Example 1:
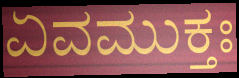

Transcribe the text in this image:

ಏವಮುಕ್ತಃ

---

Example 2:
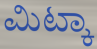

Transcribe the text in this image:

ಮಿಟ್ಕಾ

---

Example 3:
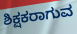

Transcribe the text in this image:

ಶಿಕ್ಷಕರಾಗುವ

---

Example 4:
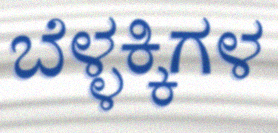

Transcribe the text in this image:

ಬೆಳ್ಳಕ್ಕಿಗಳ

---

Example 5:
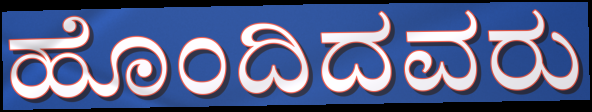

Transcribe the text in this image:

ಹೊಂದಿದವರು